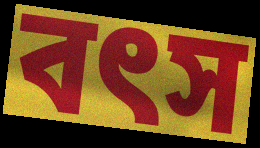
বৎস